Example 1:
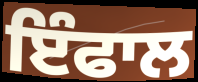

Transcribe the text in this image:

ਇੰਫਾਲ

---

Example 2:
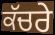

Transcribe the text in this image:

ਕੱਚਰੇ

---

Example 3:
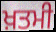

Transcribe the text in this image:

ਖ਼ਤਮੀ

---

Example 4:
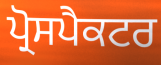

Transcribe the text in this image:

ਪ੍ਰੋਸਪੈਕਟਰ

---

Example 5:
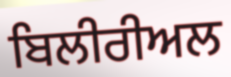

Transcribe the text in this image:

ਬਿਲੀਰੀਅਲ